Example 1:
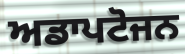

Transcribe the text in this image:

ਅਡਾਪਟੋਜਨ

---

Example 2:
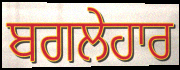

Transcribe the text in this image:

ਬਗਲੇਹਾਰ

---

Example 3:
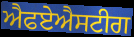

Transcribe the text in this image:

ਐਫਏਐਸਟੀਗ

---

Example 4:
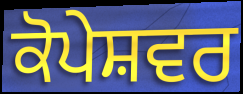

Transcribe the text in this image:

ਕੋਪੇਸ਼ਵਰ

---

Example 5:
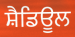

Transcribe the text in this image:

ਸ਼ੈਡਿਊਲ